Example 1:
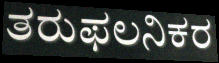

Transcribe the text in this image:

ತರುಫಲನಿಕರ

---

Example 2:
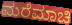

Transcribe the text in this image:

ಮರೆಮಾಚಿ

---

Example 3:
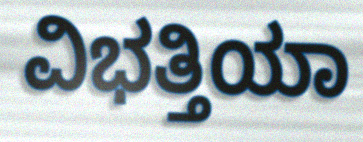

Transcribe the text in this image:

ವಿಭತ್ತಿಯಾ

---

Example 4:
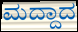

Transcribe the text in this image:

ಮದ್ದಾದ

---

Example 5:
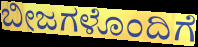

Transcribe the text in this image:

ಬೀಜಗಳೊಂದಿಗೆ